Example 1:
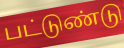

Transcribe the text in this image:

பட்டுண்டு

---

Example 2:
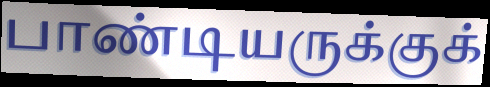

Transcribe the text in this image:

பாண்டியருக்குக்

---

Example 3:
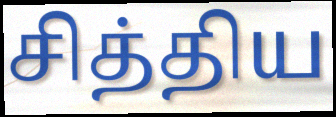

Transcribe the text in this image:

சித்திய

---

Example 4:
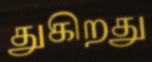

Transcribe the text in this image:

துகிறது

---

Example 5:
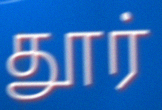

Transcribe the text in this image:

தூர்